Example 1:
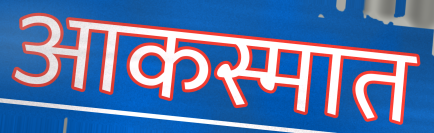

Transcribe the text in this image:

आकस्मात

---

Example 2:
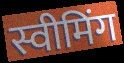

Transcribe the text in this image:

स्वीमिंग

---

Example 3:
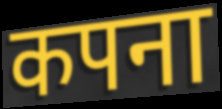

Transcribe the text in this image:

कपना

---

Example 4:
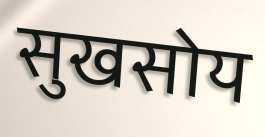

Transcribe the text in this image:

सुखसोय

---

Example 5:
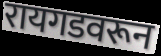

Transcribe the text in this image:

रायगडवरून